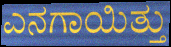
ಎನಗಾಯಿತ್ತು